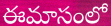
ఈమాసంలో